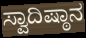
ಸ್ವಾದಿಷ್ಠಾನ